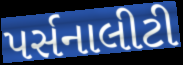
પર્સનાલીટી